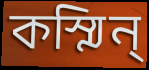
কস্মিন্